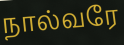
நால்வரே